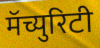
मॅच्युरिटी